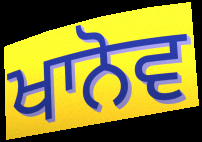
ਖਾਨੋਵ